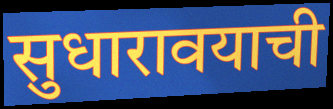
सुधारावयाची